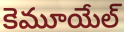
కెమూయేల్